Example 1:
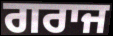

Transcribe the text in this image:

ਗਰਾਜ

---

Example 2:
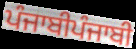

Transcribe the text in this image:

ਪੰਜਾਬੀਪੰਜਾਬੀ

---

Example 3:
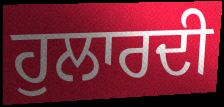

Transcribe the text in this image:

ਹੁਲਾਰਦੀ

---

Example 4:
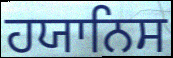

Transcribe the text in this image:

ਹਯਾਨਿਸ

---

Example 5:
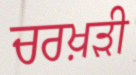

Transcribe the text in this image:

ਚਰਖ਼ੜੀ